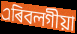
এৰিবলগীয়া